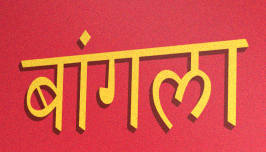
बांगला